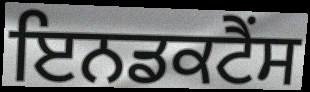
ਇਨਡਕਟੈਂਸ